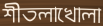
শীতলাখোলা